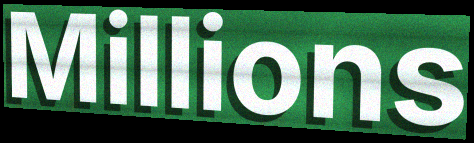
Millions